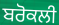
ਬਰੋਕਲੀ